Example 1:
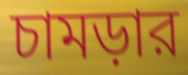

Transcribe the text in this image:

চামড়ার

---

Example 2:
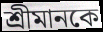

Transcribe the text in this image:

শ্রীমানকে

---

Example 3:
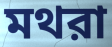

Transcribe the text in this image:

মথরা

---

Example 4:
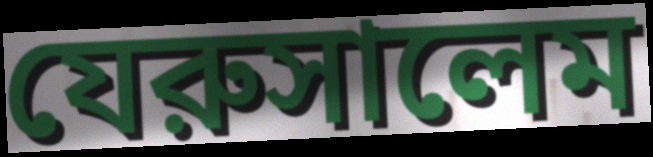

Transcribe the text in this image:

যেরুসালেম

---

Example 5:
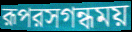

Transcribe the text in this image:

রূপরসগন্ধময়